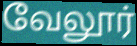
வேலூர்